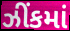
ઝીંકમાં